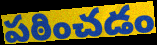
పఠించడం